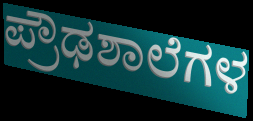
ಪ್ರೌಢಶಾಲೆಗಳ